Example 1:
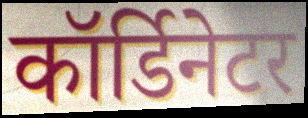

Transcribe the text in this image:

कॉर्डिनेटर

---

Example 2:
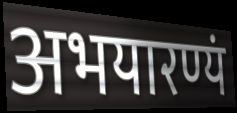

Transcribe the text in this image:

अभयारण्यं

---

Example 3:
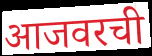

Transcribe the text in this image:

आजवरची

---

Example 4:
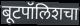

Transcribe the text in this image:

बूटपॉलिशचा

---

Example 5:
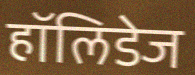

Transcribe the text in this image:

हॉलिडेज